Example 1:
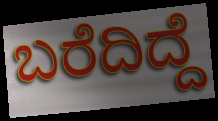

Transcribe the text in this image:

ಬರೆದಿದ್ದೆ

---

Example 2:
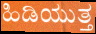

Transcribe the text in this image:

ಹಿಡಿಯುತ್ತ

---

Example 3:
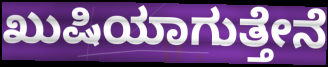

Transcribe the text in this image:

ಖುಷಿಯಾಗುತ್ತೇನೆ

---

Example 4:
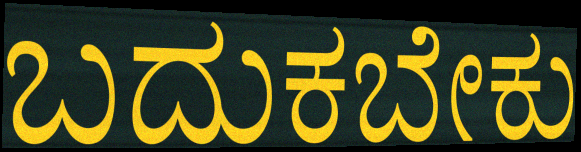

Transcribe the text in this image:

ಬದುಕಬೇಕು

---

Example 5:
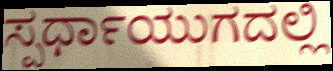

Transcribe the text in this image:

ಸ್ಪರ್ಧಾಯುಗದಲ್ಲಿ